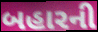
બહારની